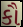
કૌ